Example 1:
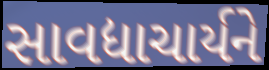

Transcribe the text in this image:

સાવદ્યાચાર્યને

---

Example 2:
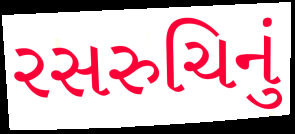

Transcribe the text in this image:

રસરુચિનું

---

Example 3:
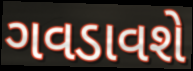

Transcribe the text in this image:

ગવડાવશે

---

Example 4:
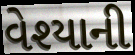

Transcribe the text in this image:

વેશ્યાની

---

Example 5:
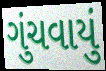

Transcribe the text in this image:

ગુંચવાયું